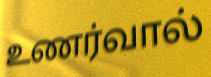
உணர்வால்